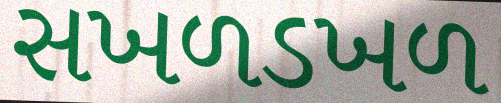
સખળડખળ